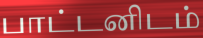
பாட்டனிடம்